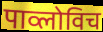
पाव्लोविच